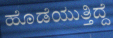
ಹೊಡೆಯುತ್ತಿದ್ದೆ